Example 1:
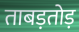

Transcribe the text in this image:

ताबड़तोड़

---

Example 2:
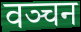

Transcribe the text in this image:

वञ्चन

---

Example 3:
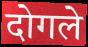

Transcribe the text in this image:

दोगले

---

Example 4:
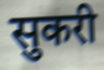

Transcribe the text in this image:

सुकरी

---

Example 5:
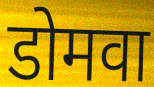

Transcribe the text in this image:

डोमवा